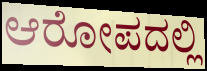
ಆರೋಪದಲ್ಲಿ